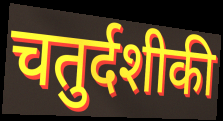
चतुर्दशीकी